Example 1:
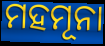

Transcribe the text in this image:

ମହମୂନା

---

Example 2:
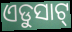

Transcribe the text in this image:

ଏଡୁସାଟ୍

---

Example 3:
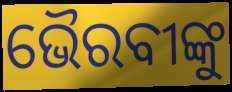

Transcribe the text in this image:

ଭୈରବୀଙ୍କୁ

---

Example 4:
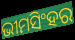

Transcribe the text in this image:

ଭୀମସିଂହର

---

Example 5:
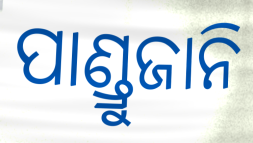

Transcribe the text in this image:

ପାଣ୍ଡ୍ରୁଜାନି